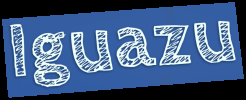
Iguazu